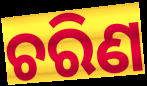
ଚରିଣ